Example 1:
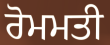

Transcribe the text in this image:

ਰੋਮਮਤੀ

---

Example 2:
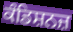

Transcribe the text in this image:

ਕੰਡਿਸ਼ਨਜ਼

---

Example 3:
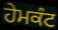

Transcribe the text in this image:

ਹੇਮਕੰਟ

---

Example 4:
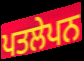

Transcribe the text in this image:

ਪਤਲੇਪਨ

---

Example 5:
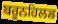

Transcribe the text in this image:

ਬਰੂਨਹਿਲਡ